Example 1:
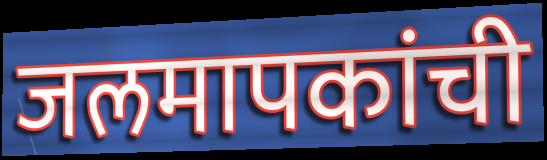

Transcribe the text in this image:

जलमापकांची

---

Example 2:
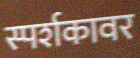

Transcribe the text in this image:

स्पर्शकावर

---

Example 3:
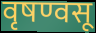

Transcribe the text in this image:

वृषण्वसू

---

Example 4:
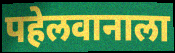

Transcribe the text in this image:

पहेलवानाला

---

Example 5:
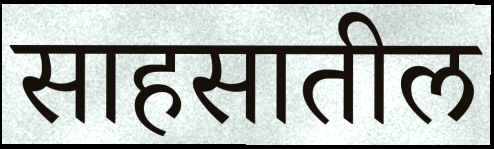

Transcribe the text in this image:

साहसातील